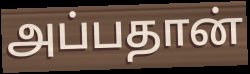
அப்பதான்